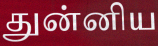
துன்னிய